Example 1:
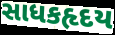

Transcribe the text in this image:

સાધકહૃદય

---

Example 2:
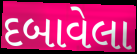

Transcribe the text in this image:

દબાવેલા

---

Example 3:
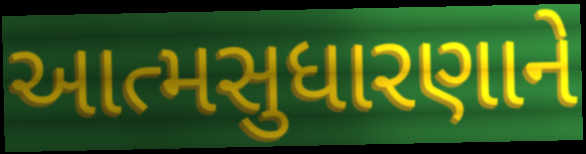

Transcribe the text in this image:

આત્મસુધારણાને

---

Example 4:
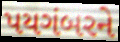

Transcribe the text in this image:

પયગંબરને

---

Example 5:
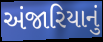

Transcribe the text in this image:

અંજારિયાનું